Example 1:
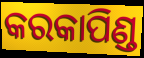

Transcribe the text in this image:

କରକାପିଣ୍ଡ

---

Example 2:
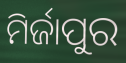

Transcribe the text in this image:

ମିର୍ଜାପୁର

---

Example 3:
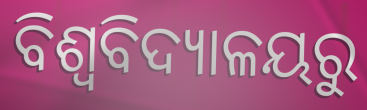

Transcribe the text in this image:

ବିଶ୍ୱବିଦ୍ୟାଳୟରୁ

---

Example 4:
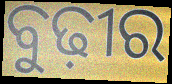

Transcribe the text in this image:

ବୁଢ଼ୀର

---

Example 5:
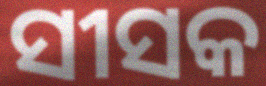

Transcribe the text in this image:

ସୀସକ